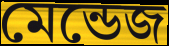
মেন্ডেজ